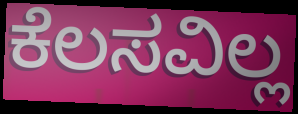
ಕೆಲಸವಿಲ್ಲ